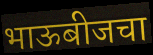
भाऊबीजचा